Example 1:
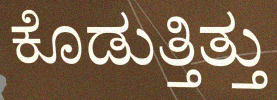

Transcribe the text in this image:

ಕೊಡುತ್ತಿತ್ತು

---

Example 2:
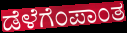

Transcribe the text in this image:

ಡೆಳೆಗೆಂಪಾಂತ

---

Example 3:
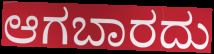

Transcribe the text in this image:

ಆಗಬಾರದು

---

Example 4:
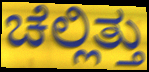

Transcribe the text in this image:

ಚೆಲ್ಲಿತ್ತು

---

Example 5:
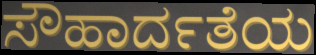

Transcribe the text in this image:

ಸೌಹಾರ್ದತೆಯ